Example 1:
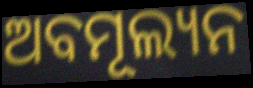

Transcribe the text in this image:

ଅବମୂଲ୍ୟନ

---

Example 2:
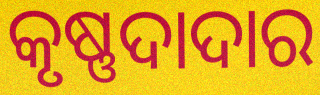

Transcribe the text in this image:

କୃଷ୍ଣଦାଦାର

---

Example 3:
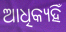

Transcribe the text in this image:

ଆଧିକ୍ୟହିଁ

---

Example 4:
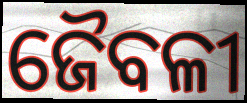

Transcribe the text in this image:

ଜୈବଳୀ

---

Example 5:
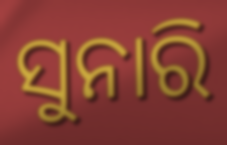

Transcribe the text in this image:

ସୁନାରି